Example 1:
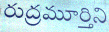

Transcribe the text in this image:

రుద్రమూర్తిని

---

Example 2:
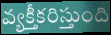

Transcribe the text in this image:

వ్యక్తీకరిస్తుంది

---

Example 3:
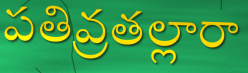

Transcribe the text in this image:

పతివ్రతల్లారా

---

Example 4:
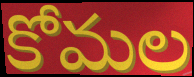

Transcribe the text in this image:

కోమల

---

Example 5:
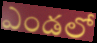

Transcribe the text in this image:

ఎండలో